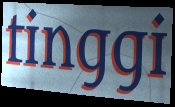
tinggi